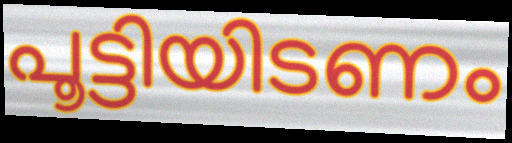
പൂട്ടിയിടണം